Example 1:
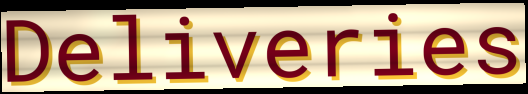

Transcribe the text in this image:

Deliveries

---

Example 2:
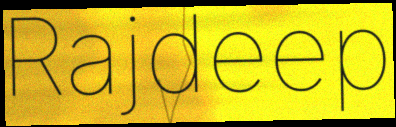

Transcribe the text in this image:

Rajdeep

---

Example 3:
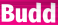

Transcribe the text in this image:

Budd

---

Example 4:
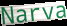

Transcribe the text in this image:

Narva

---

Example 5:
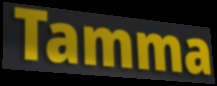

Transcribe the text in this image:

Tamma